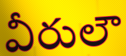
వీరులౌ